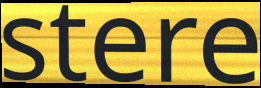
stere